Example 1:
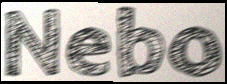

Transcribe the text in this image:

Nebo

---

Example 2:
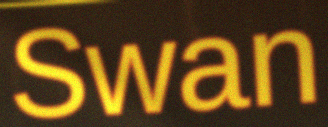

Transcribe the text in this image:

Swan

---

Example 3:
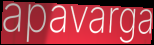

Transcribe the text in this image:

apavarga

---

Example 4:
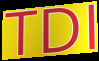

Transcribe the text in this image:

TDI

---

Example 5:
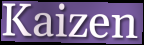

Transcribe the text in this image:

Kaizen